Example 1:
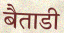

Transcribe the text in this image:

बैताडी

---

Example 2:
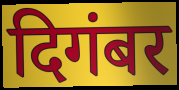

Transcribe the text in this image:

दिगंबर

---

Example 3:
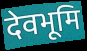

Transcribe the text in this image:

देवभूमि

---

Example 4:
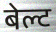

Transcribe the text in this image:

बेल्ट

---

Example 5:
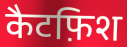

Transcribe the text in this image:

कैटफ़िश